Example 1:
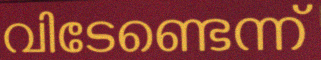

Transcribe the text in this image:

വിടേണ്ടെന്ന്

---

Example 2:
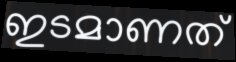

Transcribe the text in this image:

ഇടമാണത്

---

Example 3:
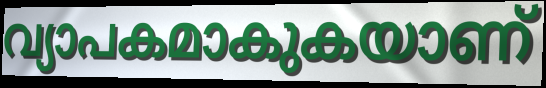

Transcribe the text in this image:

വ്യാപകമാകുകയാണ്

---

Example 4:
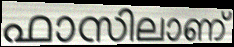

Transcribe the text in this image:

ഫാസിലാണ്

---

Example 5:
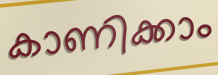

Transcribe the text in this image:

കാണിക്കാം